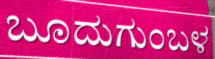
ಬೂದುಗುಂಬಳ